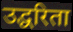
उद्धरिता